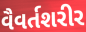
વૈવર્તશરીર